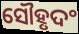
ସୌହୃଦଂ